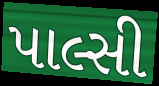
પાલ્સી